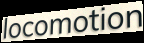
locomotion